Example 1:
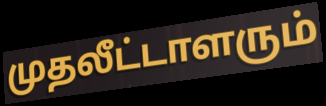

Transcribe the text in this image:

முதலீட்டாளரும்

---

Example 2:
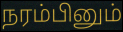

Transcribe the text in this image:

நரம்பினும்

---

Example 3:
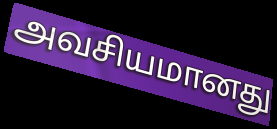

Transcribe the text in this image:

அவசியமானது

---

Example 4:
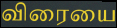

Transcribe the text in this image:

விரையை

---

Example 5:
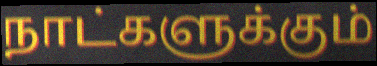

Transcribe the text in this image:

நாட்களுக்கும்